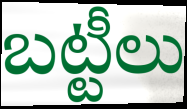
బట్టీలు